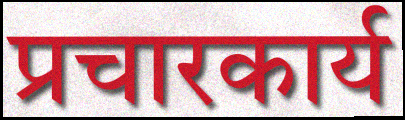
प्रचारकार्य